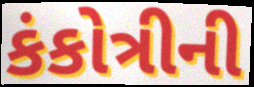
કંકોત્રીની